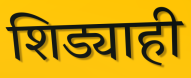
शिड्याही